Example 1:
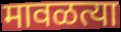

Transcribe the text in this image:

मावळत्या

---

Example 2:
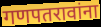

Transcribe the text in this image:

गणपतरावांना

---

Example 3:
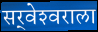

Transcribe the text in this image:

सर्वेश्वराला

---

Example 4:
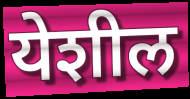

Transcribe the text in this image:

येशील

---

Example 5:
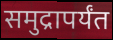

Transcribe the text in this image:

समुद्रापर्यंत